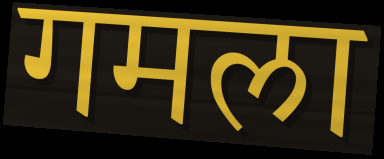
गमला